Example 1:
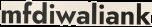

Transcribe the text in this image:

mfdiwaliank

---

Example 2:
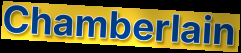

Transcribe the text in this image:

Chamberlain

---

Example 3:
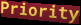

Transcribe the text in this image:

Priority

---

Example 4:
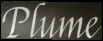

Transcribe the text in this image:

Plume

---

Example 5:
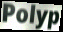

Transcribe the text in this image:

Polyp